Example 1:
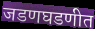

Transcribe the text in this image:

जडणघडणीत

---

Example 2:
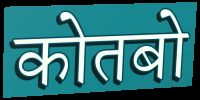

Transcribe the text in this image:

कोतबो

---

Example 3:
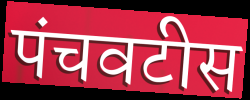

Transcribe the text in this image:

पंचवटीस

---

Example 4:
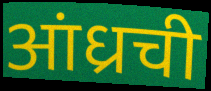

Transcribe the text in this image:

आंध्रची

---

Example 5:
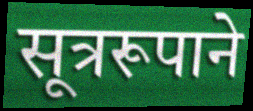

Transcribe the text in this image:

सूत्ररूपाने